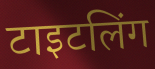
टाइटलिंग